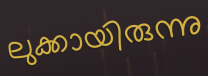
ലുക്കായിരുന്നു